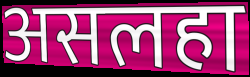
असलहा